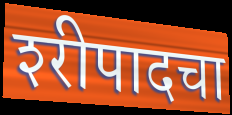
श्रीपादचा